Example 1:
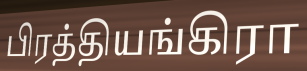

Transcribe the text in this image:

பிரத்தியங்கிரா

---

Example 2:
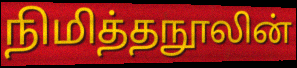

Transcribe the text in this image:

நிமித்தநூலின்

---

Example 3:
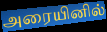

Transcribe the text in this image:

அரையினில்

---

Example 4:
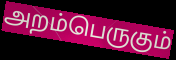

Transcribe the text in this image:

அறம்பெருகும்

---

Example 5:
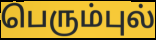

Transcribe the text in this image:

பெரும்புல்